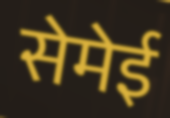
सेमेई